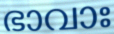
ഭാവാഃ